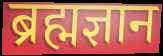
ब्रह्मज्ञान